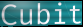
Cubit